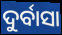
ଦୁର୍ବାସା